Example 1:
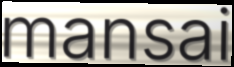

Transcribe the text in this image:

mansai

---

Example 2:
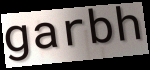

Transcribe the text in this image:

garbh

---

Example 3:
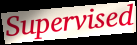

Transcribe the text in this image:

Supervised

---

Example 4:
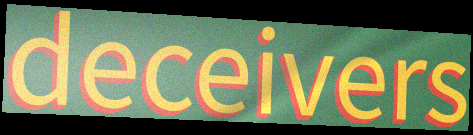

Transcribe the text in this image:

deceivers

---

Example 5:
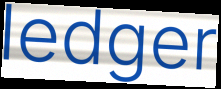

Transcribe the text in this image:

ledger